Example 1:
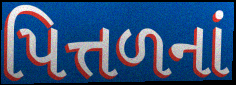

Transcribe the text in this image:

પિત્તળનાં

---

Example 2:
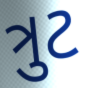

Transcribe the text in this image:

ત્રુટ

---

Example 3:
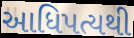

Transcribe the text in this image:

આધિપત્યથી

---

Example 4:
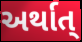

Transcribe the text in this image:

અર્થાત્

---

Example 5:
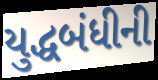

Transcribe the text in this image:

યુદ્ધબંધીની